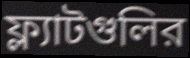
ফ্ল্যাটগুলির